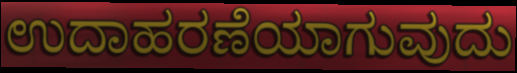
ಉದಾಹರಣೆಯಾಗುವುದು